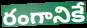
రంగానికే